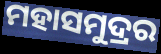
ମହାସମୁଦ୍ରର